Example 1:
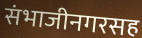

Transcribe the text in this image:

संभाजीनगरसह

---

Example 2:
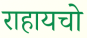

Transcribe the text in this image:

राहायचो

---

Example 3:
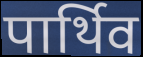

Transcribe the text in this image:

पार्थिव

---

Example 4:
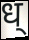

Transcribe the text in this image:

ध्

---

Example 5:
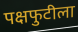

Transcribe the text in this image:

पक्षफुटीला